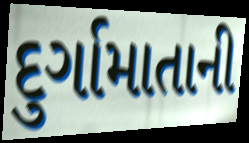
દુર્ગામાતાની